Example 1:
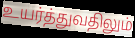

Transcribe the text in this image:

உயர்த்துவதிலும்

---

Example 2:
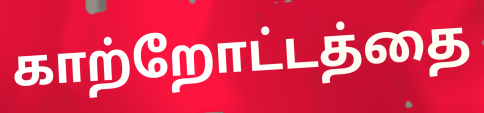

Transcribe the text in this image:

காற்றோட்டத்தை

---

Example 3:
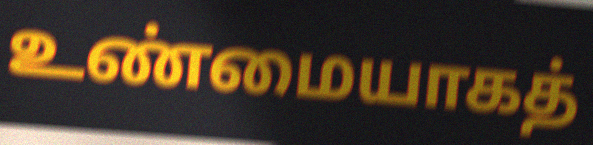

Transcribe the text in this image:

உண்மையாகத்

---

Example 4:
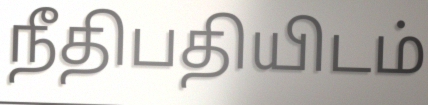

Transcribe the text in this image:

நீதிபதியிடம்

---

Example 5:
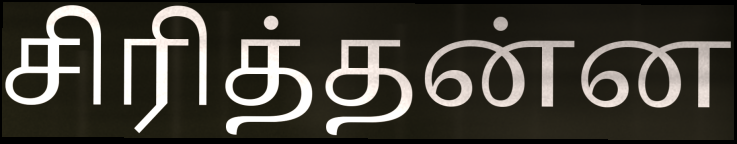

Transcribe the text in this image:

சிரித்தன்ன